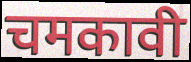
चमकावी